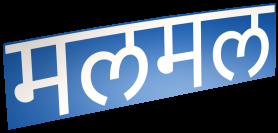
मलमल